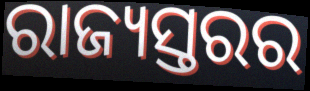
ରାଜ୍ୟସ୍ତରର